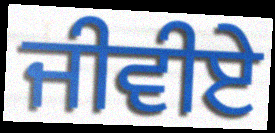
ਜੀਵੀਏ